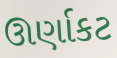
ઊર્ણાકટ